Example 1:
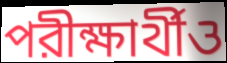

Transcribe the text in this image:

পরীক্ষার্থীও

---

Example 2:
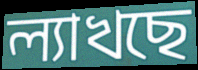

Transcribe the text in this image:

ল্যাখছে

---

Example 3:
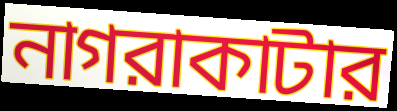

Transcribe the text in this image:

নাগরাকাটার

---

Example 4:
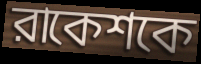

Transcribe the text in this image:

রাকেশকে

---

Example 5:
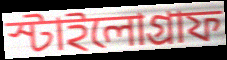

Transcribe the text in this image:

স্টাইলোগ্রাফ